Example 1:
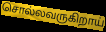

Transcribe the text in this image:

சொல்லவருகிறாய்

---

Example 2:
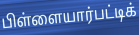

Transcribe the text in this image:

பிள்ளையார்பட்டிக்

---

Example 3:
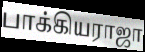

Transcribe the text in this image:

பாக்கியராஜா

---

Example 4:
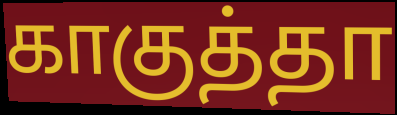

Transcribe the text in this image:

காகுத்தா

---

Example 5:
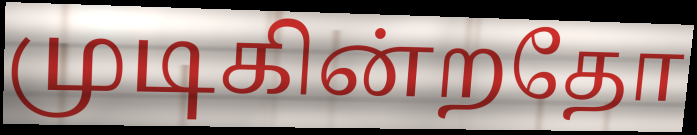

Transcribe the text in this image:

முடிகின்றதோ